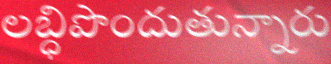
లబ్ధిపొందుతున్నారు